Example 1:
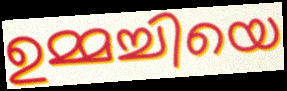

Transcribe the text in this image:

ഉമ്മച്ചിയെ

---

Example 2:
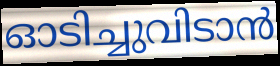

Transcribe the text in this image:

ഓടിച്ചുവിടാൻ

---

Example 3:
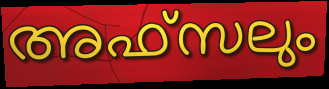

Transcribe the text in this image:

അഫ്സലും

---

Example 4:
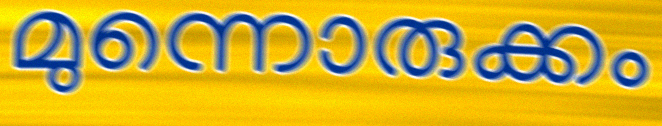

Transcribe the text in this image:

മുന്നൊരുക്കം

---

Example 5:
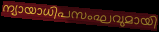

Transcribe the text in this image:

ന്യായാധിപസംഘവുമായി